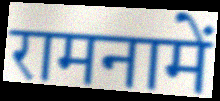
रामनामें